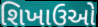
શિખાઉઓ